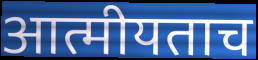
आत्मीयताच